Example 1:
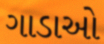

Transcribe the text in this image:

ગાડાઓ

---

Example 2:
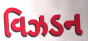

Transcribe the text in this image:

વિઝડન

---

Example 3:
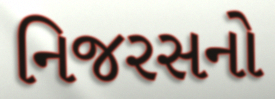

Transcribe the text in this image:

નિજરસનો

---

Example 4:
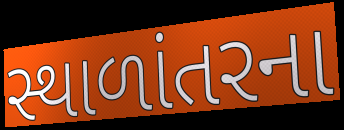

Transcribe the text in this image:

સ્થાળાંતરના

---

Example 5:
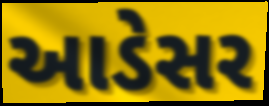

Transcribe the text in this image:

આડેસર